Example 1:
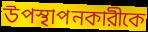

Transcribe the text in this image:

উপস্থাপনকারীকে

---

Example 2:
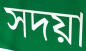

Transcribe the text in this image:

সদয়া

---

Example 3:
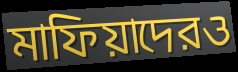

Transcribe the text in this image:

মাফিয়াদেরও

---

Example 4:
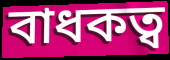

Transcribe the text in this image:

বাধকত্ব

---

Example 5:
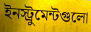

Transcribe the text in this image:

ইনস্ট্রুমেন্টগুলো